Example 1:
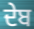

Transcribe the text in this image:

ਦੇਬ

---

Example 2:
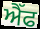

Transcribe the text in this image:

ਐੈੱਫ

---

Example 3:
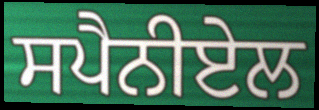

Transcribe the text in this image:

ਸਪੈਨੀਏਲ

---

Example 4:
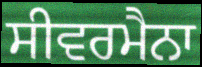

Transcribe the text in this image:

ਸੀਵਰਮੈਨਾ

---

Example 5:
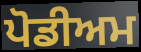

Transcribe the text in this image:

ਪੋਡੀਅਮ